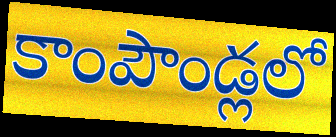
కాంపౌండ్లలో